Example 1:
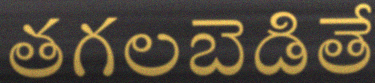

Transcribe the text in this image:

తగలబెడితే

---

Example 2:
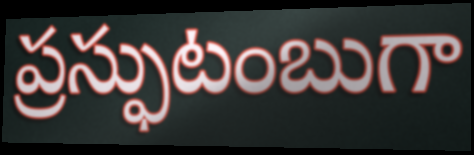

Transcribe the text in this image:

ప్రస్ఫుటంబుగా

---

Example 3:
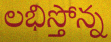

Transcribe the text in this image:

లభిస్తోన్న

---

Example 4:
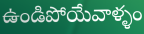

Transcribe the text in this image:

ఉండిపోయేవాళ్ళం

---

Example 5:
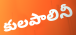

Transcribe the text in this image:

కులపాలినీ